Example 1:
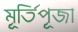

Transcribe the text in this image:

মূৰ্তিপূজা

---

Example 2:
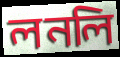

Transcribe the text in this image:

লনলি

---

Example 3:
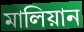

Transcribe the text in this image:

মালিয়ান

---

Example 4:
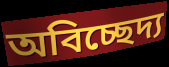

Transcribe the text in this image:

অবিচ্ছেদ্য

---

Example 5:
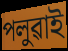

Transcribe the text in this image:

পলুৱাই